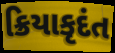
ક્રિયાકૃદંત